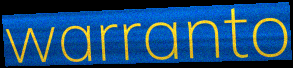
warranto